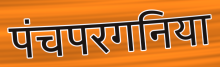
पंचपरगनिया